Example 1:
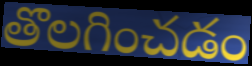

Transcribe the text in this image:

తొలగించడం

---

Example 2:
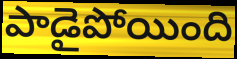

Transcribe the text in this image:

పాడైపోయింది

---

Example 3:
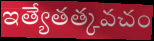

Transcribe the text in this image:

ఇత్యేతత్కవచం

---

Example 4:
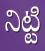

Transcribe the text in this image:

నిట్టి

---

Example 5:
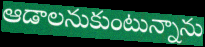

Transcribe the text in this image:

ఆడాలనుకుంటున్నాను